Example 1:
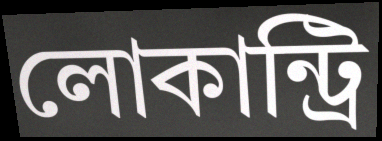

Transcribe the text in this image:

লোকান্ট্রি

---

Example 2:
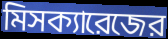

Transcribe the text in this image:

মিসক্যারেজের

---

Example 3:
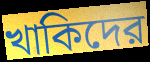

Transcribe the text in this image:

খাকিদের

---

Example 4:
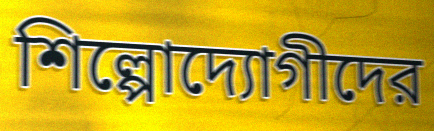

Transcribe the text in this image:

শিল্পোদ্যোগীদের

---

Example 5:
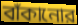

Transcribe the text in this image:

বাঁকানোর